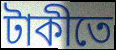
টাকীতে